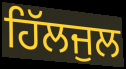
ਹਿੱਲਜੁਲ